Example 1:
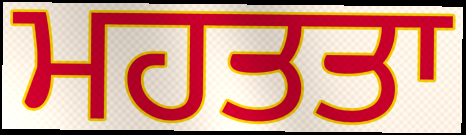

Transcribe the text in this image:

ਮਹਤਤਾ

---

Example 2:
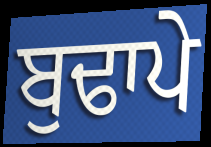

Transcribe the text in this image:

ਬੁਢਾਪੇ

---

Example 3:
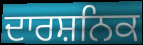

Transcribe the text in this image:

ਦਾਰਸ਼ਨਿਕ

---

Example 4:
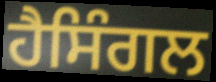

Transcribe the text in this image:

ਹੈਸਿੰਗਲ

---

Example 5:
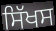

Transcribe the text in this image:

ਸਿੱਖਸ